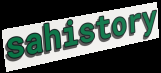
sahistory